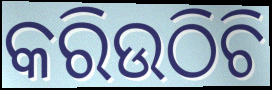
କରିଉଠିଚି